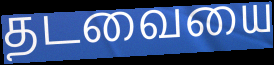
தடவையை